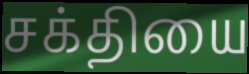
சக்தியை